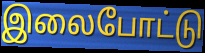
இலைபோட்டு